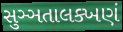
સુઞ્ઞતાલક્ખણં